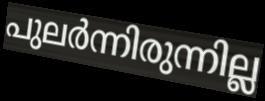
പുലർന്നിരുന്നില്ല